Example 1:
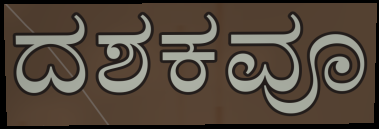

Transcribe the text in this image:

ದಶಕವೂ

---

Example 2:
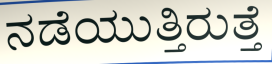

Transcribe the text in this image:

ನಡೆಯುತ್ತಿರುತ್ತೆ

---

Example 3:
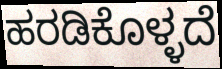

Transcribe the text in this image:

ಹರಡಿಕೊಳ್ಳದೆ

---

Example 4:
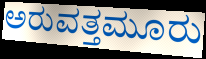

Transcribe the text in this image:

ಅರುವತ್ತಮೂರು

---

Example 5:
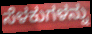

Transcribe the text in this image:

ಸೆಳಕುಗಳನ್ನು